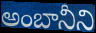
అంబానీని